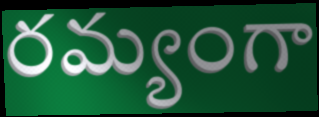
రమ్యంగా